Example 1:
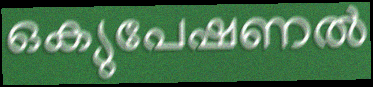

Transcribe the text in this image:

ഒക്യുപേഷണൽ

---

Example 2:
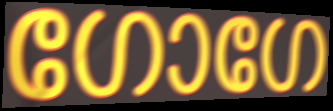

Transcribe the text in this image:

ഗോഗേ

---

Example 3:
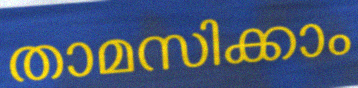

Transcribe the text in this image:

താമസിക്കാം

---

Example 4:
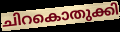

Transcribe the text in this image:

ചിറകൊതുക്കി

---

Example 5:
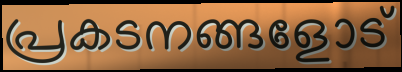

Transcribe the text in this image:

പ്രകടനങ്ങളോട്